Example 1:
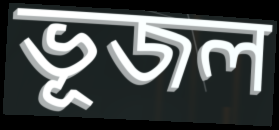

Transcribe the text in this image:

ভূজল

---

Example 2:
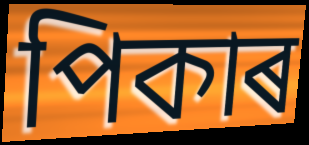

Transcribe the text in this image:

পিকাৰ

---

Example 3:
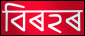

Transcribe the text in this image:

বিৰহৰ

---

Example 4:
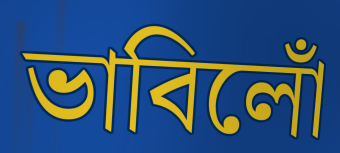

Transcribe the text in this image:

ভাবিলোঁ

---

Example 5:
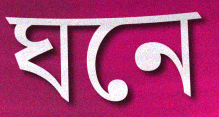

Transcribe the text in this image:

ঘনে